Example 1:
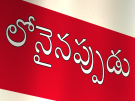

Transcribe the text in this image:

లోనైనప్పుడు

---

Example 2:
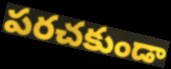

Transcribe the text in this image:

పరచకుండా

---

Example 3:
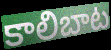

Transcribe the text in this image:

కాలిబాట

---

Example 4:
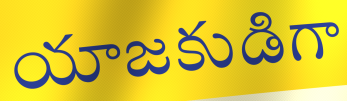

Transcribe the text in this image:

యాజకుడిగా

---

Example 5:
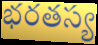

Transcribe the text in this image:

భరతస్య